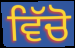
ਵਿੱਚੋ